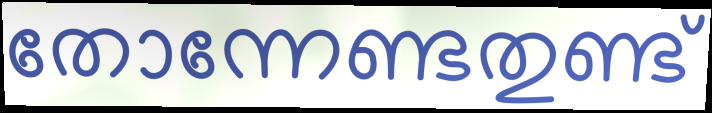
തോന്നേണ്ടതുണ്ട്